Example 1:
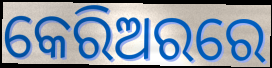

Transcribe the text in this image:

କେରିଅରରେ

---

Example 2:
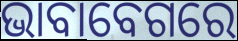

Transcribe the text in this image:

ଭାବାବେଗରେ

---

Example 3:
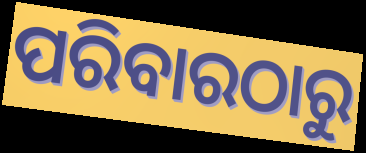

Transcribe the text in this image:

ପରିବାରଠାରୁ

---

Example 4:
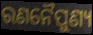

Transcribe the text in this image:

ରଣନୈପୁଣ୍ୟ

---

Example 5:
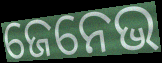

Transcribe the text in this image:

ଜେନେଭ